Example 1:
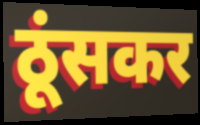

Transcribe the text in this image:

ठूंसकर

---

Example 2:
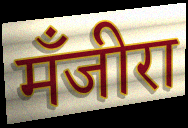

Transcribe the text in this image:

मँजीरा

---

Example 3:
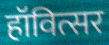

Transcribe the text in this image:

हॉवित्सर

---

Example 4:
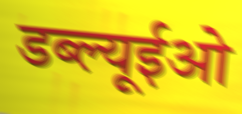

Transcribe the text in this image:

डब्ल्यूईओ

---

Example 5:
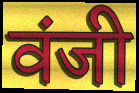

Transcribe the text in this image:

वंजी